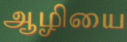
ஆழியை